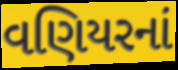
વણિયરનાં